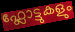
ഫ്ലോട്ടുകളും